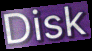
Disk